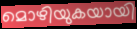
മൊഴിയുകയായി